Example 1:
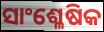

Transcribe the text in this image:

ସାଂଶ୍ଳେଷିକ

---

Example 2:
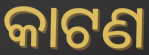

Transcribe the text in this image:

କାଟଣ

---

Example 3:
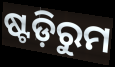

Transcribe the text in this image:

ଷ୍ଟଡ଼ିରୁମ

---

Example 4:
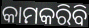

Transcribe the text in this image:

କାମକରିବି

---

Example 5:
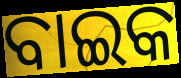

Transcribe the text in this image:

ବାଇକ